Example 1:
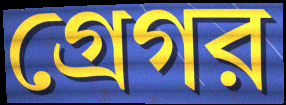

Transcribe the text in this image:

গ্রেগর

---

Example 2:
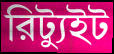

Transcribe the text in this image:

রিট্যুইট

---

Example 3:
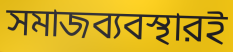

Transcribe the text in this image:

সমাজব্যবস্থারই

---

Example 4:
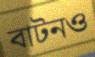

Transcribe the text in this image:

বাটনও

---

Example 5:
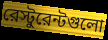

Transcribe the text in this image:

রেস্টুরেন্টগুলো